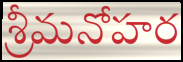
శ్రీమనోహర